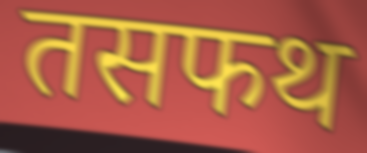
तसफथ